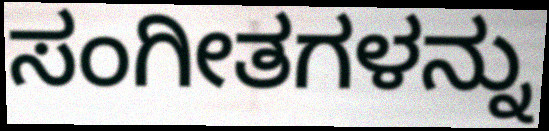
ಸಂಗೀತಗಳನ್ನು